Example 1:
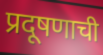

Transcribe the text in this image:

प्रदूषणाची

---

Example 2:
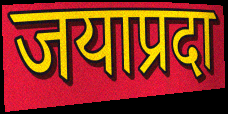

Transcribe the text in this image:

जयाप्रदा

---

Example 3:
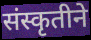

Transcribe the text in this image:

संस्कृतीने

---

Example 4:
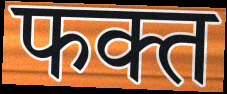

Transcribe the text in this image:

फक्त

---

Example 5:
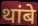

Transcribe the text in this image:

थांबे